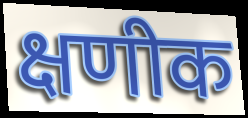
क्षणीक